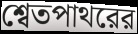
শ্বেতপাথরের